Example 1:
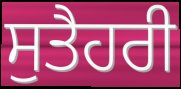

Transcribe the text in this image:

ਸੁਤੈਹਰੀ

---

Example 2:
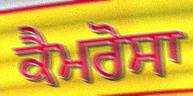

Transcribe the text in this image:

ਕੈਮਰੋਸਾ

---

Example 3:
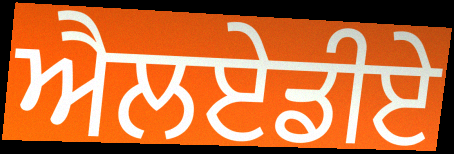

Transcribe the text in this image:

ਐਲਏਡੀਏ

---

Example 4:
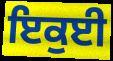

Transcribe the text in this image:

ਇਕੁਈ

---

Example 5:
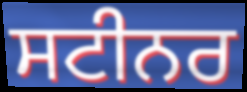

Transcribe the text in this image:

ਸਟੀਨਰ